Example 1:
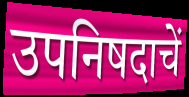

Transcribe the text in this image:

उपनिषदाचें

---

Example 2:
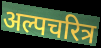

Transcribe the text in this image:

अल्पचरित्र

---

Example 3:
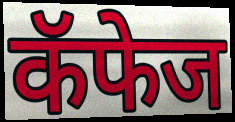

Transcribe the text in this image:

कॅफेज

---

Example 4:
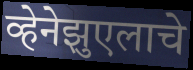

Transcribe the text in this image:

व्हेनेझुएलाचे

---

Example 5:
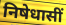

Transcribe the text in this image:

निषेधासीं